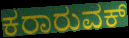
ಕರಾರುವಕ್